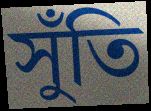
সুঁতি